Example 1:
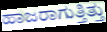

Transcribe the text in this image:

ಹಾಜರಾಗುತ್ತಿತ್ತು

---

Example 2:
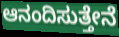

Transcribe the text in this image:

ಆನಂದಿಸುತ್ತೇನೆ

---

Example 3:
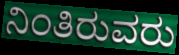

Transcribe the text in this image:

ನಿಂತಿರುವರು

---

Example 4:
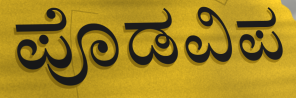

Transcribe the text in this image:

ಪೊಡವಿಪ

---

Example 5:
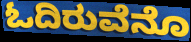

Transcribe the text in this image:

ಓದಿರುವೆನೊ